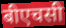
बीएचसी